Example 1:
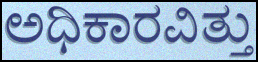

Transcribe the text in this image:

ಅಧಿಕಾರವಿತ್ತು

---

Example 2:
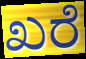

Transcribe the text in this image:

ಖರೆ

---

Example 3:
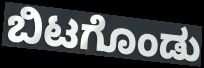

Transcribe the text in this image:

ಬಿಟಗೊಂಡು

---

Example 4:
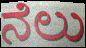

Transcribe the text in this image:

ನೆಲು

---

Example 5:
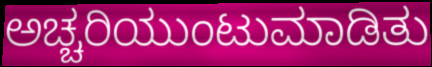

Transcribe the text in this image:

ಅಚ್ಚರಿಯುಂಟುಮಾಡಿತು